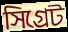
সিগ্রেট